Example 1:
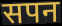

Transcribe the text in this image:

सपन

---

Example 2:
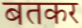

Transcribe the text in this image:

बतकर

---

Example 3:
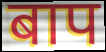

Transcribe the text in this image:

बाप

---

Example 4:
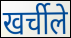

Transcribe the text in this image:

खर्चीले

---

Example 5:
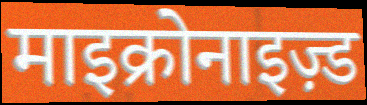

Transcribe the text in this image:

माइक्रोनाइज़्ड